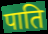
पाति